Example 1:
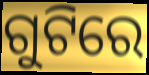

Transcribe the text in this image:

ଗୁଟିରେ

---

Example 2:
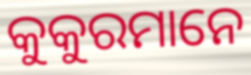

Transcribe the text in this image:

କୁକୁରମାନେ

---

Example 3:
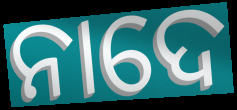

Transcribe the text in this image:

ନାଦେ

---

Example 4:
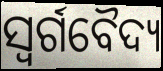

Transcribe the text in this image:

ସ୍ୱର୍ଗବୈଦ୍ୟ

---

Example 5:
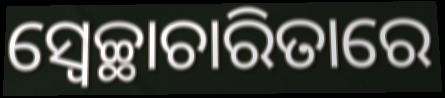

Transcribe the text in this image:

ସ୍ୱେଚ୍ଛାଚାରିତାରେ